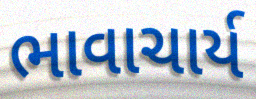
ભાવાચાર્ય